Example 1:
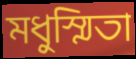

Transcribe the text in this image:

মধুস্মিতা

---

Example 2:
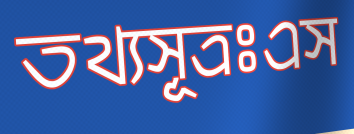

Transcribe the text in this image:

তথ্যসূত্রঃএস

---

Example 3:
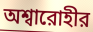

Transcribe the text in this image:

অশ্বারোহীর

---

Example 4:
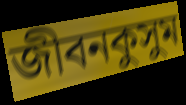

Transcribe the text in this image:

জীবনকুসুম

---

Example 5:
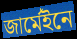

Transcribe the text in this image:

জার্মেইনে